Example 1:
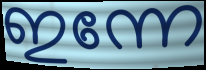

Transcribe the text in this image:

ഇന്നേ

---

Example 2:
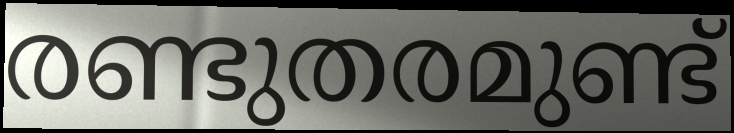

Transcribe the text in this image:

രണ്ടുതരമുണ്ട്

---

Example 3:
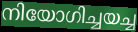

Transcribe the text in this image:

നിയോഗിച്ചയച്ച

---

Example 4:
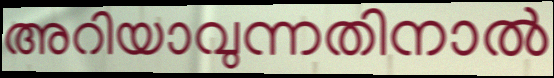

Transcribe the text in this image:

അറിയാവുന്നതിനാൽ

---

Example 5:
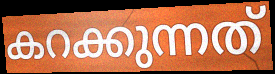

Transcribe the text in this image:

കറക്കുന്നത്